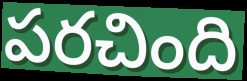
పరచింది